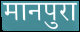
मानपुरा